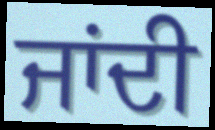
ਜਾਂਦੀ